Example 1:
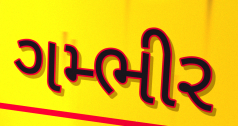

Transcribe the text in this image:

ગમ્ભીર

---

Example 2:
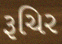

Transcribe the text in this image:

રૂચિર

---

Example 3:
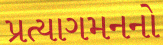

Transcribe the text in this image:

પ્રત્યાગમનનો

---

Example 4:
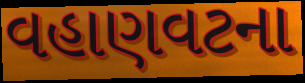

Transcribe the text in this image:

વહાણવટના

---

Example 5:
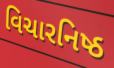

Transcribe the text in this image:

વિચારનિષ્ઠ